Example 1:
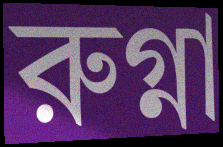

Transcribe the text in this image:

রুগ্না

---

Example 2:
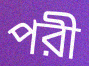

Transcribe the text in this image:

পরী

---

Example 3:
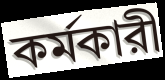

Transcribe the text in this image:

কর্মকারী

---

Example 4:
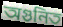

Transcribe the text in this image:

অগুনিত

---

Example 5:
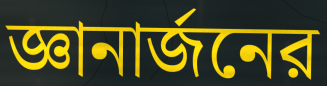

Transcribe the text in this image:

জ্ঞানার্জনের